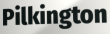
Pilkington